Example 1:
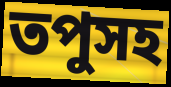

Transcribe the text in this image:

তপুসহ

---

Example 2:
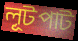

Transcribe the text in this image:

লূটপাট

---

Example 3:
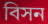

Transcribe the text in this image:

বিসন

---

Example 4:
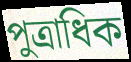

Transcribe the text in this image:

পুত্রাধিক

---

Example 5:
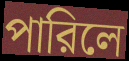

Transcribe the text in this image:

পারিলে